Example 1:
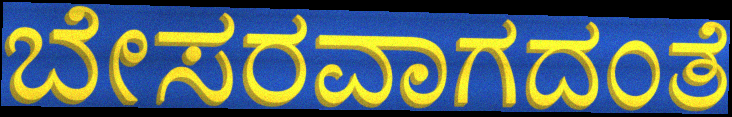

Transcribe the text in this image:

ಬೇಸರವಾಗದಂತೆ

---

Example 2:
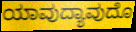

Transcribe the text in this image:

ಯಾವುದ್ಯಾವುದೊ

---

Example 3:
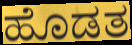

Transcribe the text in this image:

ಹೊಡತ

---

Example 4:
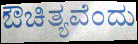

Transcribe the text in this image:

ಔಚಿತ್ಯವೆಂದು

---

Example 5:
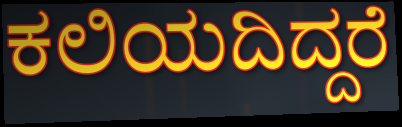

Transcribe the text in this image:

ಕಲಿಯದಿದ್ದರೆ